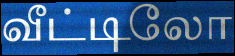
வீட்டிலோ